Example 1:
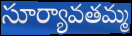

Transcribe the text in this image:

సూర్యావతమ్మ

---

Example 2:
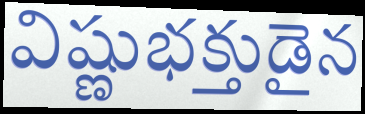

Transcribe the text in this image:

విష్ణుభక్తుడైన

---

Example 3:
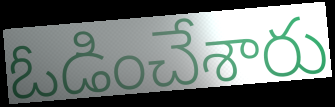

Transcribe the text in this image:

ఓడించేశారు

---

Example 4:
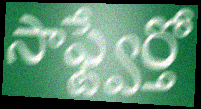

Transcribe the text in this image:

సాఫ్ట్వేర్తో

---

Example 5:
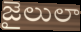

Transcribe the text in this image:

జైలులా